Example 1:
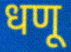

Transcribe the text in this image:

धणू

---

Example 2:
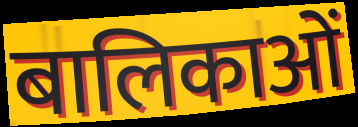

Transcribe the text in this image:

बालिकाओं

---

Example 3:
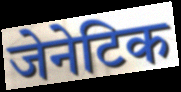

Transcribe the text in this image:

जेनेटिक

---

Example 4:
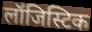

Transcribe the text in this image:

लॉजिस्टिक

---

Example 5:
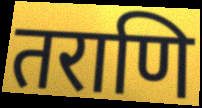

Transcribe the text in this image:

तराणि